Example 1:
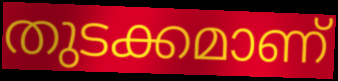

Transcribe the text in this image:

തുടക്കമാണ്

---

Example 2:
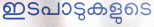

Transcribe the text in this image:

ഇടപാടുകളുടെ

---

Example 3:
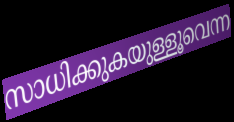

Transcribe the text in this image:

സാധിക്കുകയുള്ളൂവെന്ന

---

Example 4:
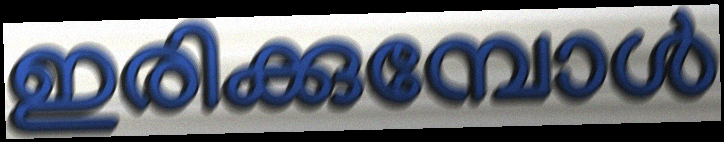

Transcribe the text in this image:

ഇരിക്കുമ്പോൾ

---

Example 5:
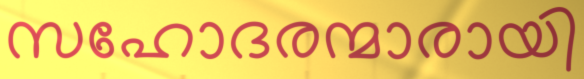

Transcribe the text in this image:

സഹോദരന്മാരായി